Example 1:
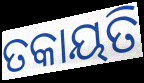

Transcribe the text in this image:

ତକାୟତି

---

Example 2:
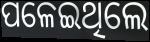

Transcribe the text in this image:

ପଳେଇଥିଲେ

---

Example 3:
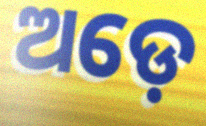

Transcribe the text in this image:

ଅଡ଼େ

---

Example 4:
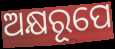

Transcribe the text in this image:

ଅକ୍ଷରୂପେ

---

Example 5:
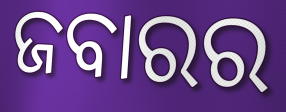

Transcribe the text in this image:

ଜବାରର